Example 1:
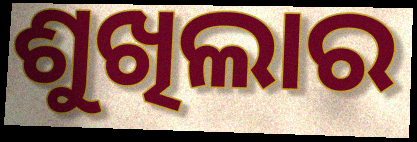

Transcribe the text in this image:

ଶୁଖିଲାର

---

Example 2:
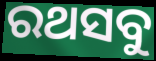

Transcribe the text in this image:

ରଥସବୁ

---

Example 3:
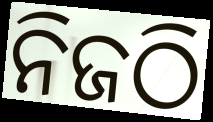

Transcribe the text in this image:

ନିଜଠି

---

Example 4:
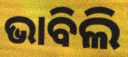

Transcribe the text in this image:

ଭାବିଲି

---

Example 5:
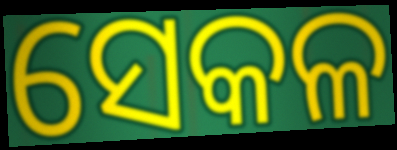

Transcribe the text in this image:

ସେକଳ